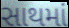
સાથમાં